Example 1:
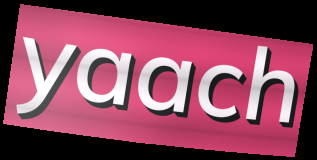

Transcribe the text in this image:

yaach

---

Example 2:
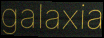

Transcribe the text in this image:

galaxia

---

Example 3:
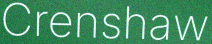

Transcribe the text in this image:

Crenshaw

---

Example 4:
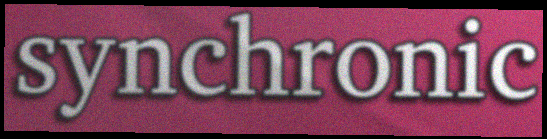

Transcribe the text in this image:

synchronic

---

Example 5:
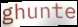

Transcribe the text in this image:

ghunte